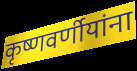
कृष्णवर्णीयांना